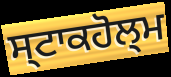
ਸ੍ਟਾਕਹੋਲ੍ਮ